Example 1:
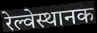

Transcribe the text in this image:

रेल्वेस्थानक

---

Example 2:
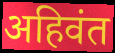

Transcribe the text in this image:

अहिवंत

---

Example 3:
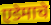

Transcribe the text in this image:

एडेमाचे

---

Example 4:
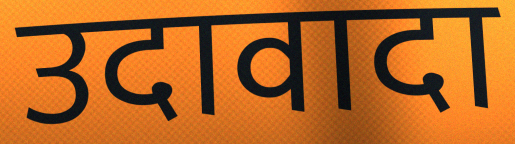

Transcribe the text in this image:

उदावादा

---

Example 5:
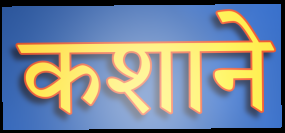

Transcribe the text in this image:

कशाने